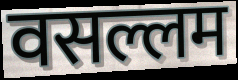
वसल्लम